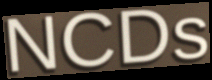
NCDs